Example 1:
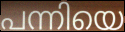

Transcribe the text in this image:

പന്നിയെ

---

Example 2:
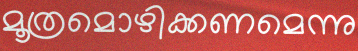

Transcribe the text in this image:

മൂത്രമൊഴിക്കണമെന്നു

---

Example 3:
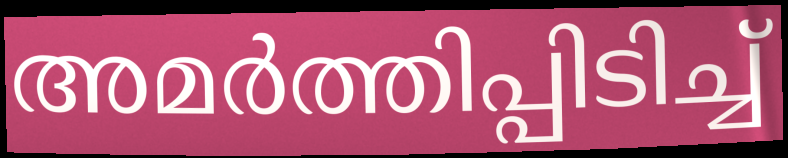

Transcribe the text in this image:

അമർത്തിപ്പിടിച്ച്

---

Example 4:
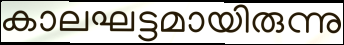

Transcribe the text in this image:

കാലഘട്ടമായിരുന്നു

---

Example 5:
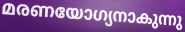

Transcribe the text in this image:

മരണയോഗ്യനാകുന്നു